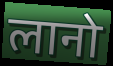
लानो